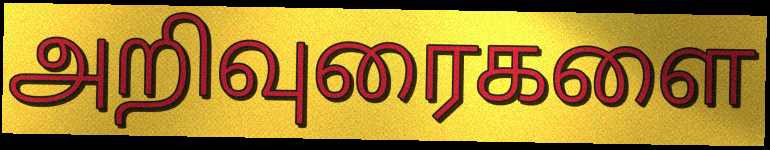
அறிவுரைகளை